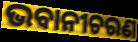
ଭବାନୀଚରଣ